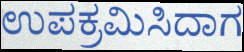
ಉಪಕ್ರಮಿಸಿದಾಗ